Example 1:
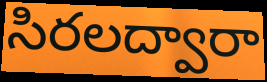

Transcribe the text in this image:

సిరలద్వారా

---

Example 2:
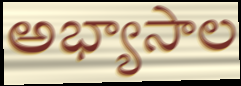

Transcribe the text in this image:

అభ్యాసాల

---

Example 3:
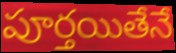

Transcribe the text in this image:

పూర్తయితేనే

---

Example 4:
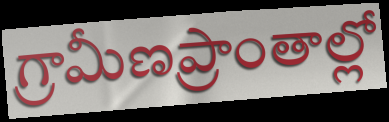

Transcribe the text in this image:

గ్రామీణప్రాంతాల్లో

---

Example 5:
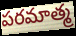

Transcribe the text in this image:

పరమాత్మ